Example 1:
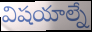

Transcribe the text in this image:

విషయాల్నే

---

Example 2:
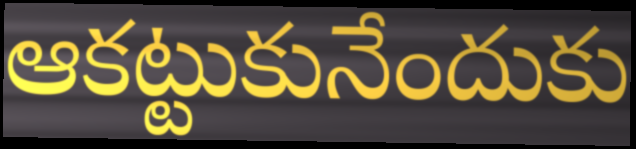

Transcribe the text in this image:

ఆకట్టుకునేందుకు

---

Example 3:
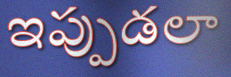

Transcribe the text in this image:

ఇప్పుడలా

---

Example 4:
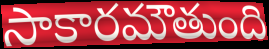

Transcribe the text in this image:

సాకారమౌతుంది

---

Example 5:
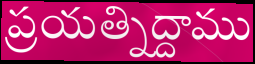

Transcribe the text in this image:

ప్రయత్నిద్దాము